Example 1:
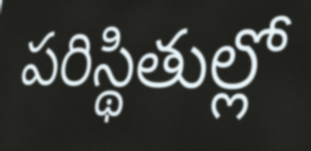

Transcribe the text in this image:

పరిస్థితుల్లో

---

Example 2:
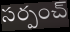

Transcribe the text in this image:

సర్పంచ్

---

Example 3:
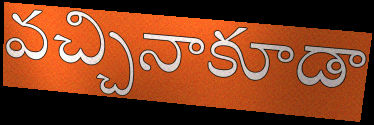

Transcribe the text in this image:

వచ్చినాకూడా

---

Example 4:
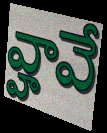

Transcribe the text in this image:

వ్హావే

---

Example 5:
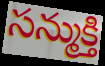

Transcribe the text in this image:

సన్ముక్తి